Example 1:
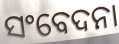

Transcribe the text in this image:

ସଂବେଦନା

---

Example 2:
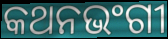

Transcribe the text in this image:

କଥନଭଂଗୀ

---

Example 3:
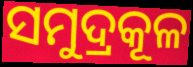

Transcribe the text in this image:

ସମୁଦ୍ରକୂଳ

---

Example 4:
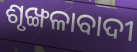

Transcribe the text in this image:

ଶୃଙ୍ଖଳାବାଦୀ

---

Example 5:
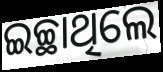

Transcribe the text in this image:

ଇଚ୍ଛାଥିଲେ